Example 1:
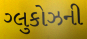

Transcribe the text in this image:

ગ્લુકોઝની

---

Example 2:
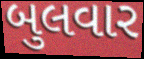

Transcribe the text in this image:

બુલવાર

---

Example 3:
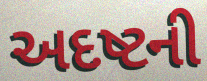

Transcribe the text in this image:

અદષ્ટની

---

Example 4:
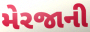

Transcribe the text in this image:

મેરજાની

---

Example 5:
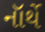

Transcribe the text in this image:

નૉર્થે